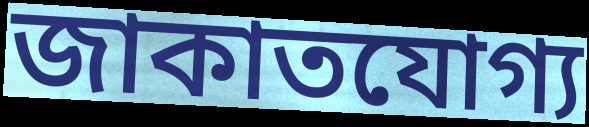
জাকাতযোগ্য